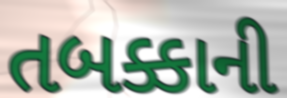
તબક્કાની